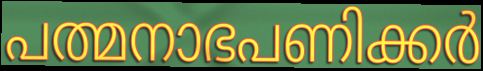
പത്മനാഭപണിക്കർ